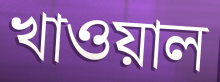
খাওয়াল